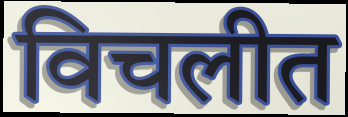
विचलीत